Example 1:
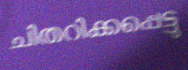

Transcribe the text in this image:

ചിതറിക്കപ്പെട്ടു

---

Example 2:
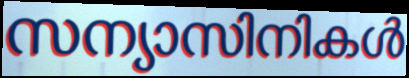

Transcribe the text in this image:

സന്യാസിനികൾ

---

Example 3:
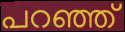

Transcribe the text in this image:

പറഞ്ഞ്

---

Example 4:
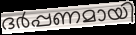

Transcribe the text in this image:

ദർപ്പണമായി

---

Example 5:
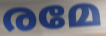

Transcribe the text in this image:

രമേ